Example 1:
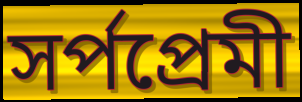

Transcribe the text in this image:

সর্পপ্রেমী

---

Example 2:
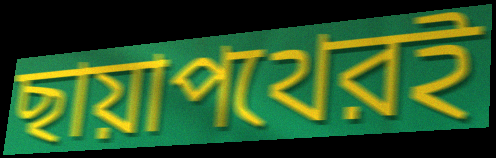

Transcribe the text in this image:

ছায়াপথেরই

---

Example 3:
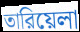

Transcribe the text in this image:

তারিয়েলা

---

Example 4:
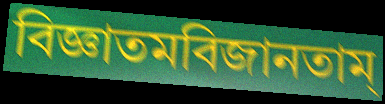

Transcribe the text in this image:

বিজ্ঞাতমবিজানতাম্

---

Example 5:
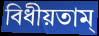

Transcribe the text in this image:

বিধীয়তাম্